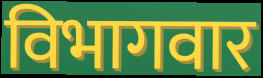
विभागवार